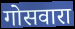
गोसवारा